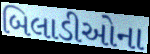
બિલાડીઓના